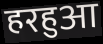
हरहुआ